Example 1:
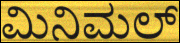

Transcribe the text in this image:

ಮಿನಿಮಲ್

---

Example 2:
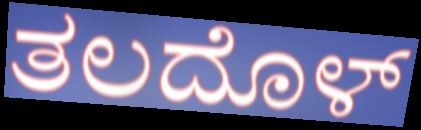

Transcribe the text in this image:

ತಲದೊಳ್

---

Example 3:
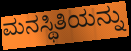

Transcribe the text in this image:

ಮನಸ್ಥಿತಿಯನ್ನು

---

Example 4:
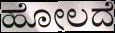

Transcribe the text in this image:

ಹೋಲದೆ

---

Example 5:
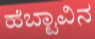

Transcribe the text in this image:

ಹೆಬ್ಟಾವಿನ